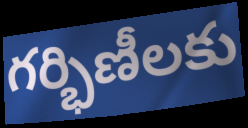
గర్భిణీలకు